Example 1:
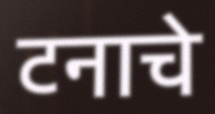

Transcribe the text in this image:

टनाचे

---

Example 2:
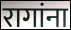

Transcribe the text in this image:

रागांना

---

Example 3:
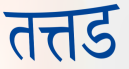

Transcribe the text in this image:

तत्तड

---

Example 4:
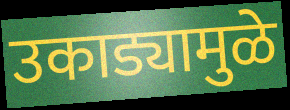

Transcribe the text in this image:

उकाड्यामुळे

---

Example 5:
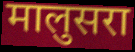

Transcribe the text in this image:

मालुसरा